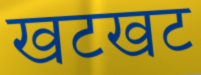
खटखट